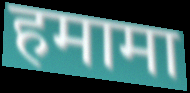
हमामा